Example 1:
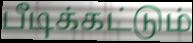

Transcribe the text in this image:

பீடிக்கட்டும்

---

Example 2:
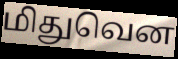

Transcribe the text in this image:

மிதுவென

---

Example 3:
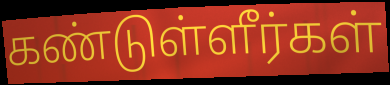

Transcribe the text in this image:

கண்டுள்ளீர்கள்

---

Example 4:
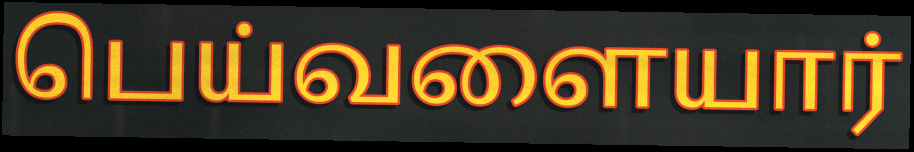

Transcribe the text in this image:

பெய்வளையார்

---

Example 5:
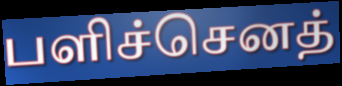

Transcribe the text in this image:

பளிச்செனத்